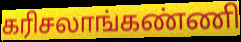
கரிசலாங்கண்ணி